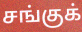
சங்குக்